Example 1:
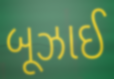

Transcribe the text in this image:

બૂઝાઈ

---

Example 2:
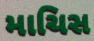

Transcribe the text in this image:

માચિસ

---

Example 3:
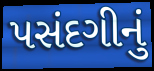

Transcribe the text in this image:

પસંદગીનું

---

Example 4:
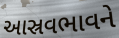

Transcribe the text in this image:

આસ્રવભાવને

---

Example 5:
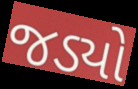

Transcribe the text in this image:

જડ્યો